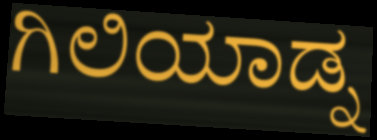
ಗಿಲಿಯಾಡ್ನ